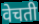
वेचती